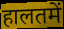
हालतमें